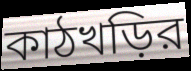
কাঠখড়ির